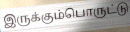
இருக்கும்பொருட்டு